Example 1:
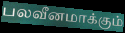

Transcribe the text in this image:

பலவீனமாக்கும்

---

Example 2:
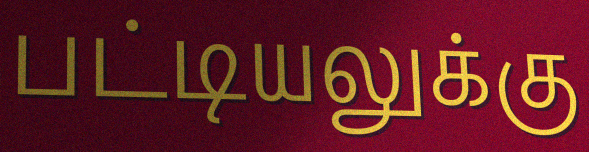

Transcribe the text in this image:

பட்டியலுக்கு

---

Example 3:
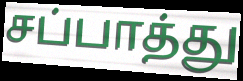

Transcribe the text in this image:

சப்பாத்து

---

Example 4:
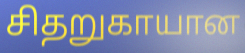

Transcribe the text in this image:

சிதறுகாயான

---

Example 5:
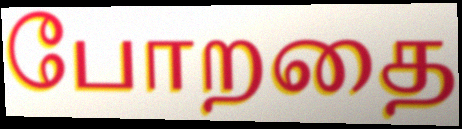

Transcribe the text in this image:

போறதை